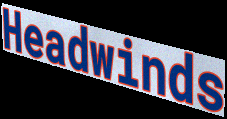
Headwinds